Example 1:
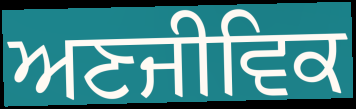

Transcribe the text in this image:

ਅਣਜੀਵਿਕ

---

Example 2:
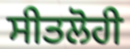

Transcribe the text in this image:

ਸੀਤਲੋਹੀ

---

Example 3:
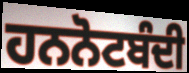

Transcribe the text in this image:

ਹਨਨੋਟਬੰਦੀ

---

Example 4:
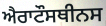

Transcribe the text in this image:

ਐਰਾਟੌਸਥੀਨਸ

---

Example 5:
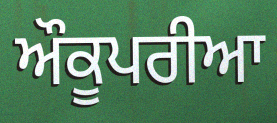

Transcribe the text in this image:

ਔਕੂਪਰੀਆ